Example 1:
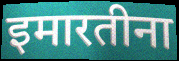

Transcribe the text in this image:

इमारतीना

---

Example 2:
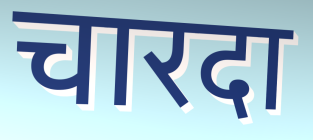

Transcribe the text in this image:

चारदा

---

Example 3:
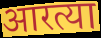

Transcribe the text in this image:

आरत्या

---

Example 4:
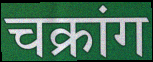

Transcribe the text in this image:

चक्रांग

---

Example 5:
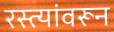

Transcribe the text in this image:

रस्त्यांवरून